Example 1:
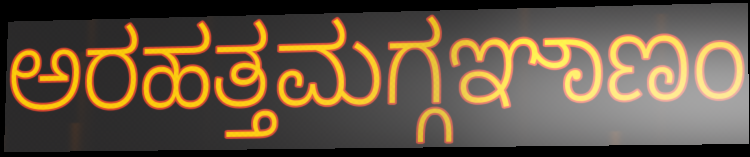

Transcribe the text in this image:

ಅರಹತ್ತಮಗ್ಗಞಾಣಂ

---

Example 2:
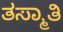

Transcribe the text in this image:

ತಸ್ಮಾತಿ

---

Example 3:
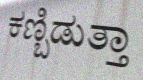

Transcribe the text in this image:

ಕಣ್ಬಿಡುತ್ತಾ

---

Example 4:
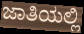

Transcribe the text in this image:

ಜಾತಿಯಲ್ಲಿ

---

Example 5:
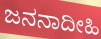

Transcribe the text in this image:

ಜನನಾದೀಹಿ